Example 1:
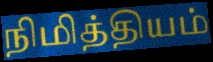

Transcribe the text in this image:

நிமித்தியம்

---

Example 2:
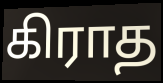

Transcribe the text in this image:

கிராத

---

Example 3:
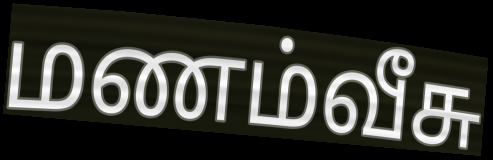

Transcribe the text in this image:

மணம்வீசு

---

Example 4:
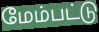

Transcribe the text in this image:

மேம்பட்டு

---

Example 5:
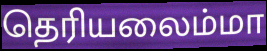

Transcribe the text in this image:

தெரியலைம்மா